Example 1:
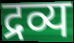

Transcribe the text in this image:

द्रव्य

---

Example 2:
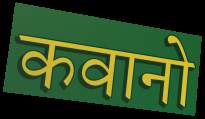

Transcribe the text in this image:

कवानो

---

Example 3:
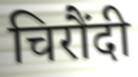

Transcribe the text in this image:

चिरौंदी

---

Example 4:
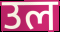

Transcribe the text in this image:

उल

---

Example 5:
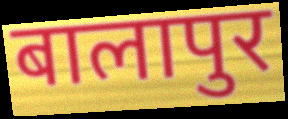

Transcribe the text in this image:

बालापुर